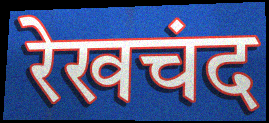
रेखचंद